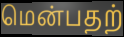
மென்பதற்